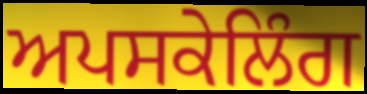
ਅਪਸਕੇਲਿੰਗ